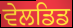
ਵੇਲਡਿਡ